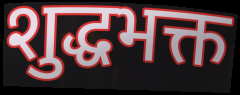
शुद्धभक्त